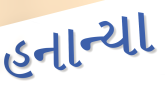
હનાન્યા